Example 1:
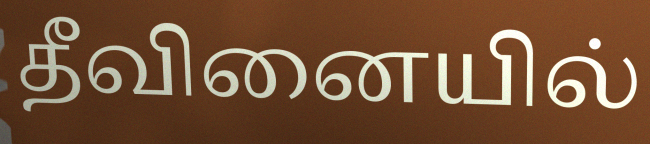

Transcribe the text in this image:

தீவினையில்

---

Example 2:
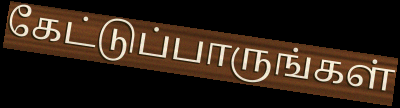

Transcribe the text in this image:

கேட்டுப்பாருங்கள்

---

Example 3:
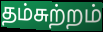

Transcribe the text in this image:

தம்சுற்றம்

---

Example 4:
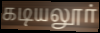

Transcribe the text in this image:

கடியலூர்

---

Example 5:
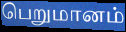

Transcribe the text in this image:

பெறுமானம்